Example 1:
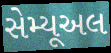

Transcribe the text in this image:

સેમ્યૂઅલ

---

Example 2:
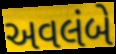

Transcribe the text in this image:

અવલંબે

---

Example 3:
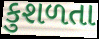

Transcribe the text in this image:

કુશળતા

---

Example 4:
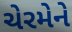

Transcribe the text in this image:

ચેરમેને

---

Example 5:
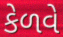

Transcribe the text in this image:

કેળવે